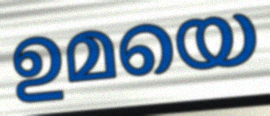
ഉമയെ